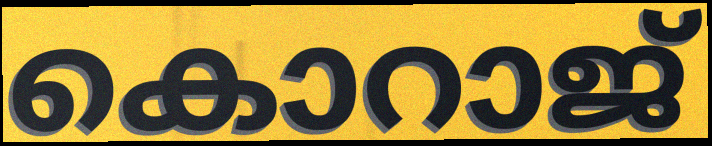
കൊറാജ്